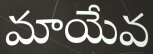
మాయేవ